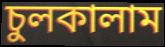
চুলকালাম